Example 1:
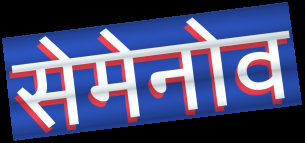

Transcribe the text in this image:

सेमेनोव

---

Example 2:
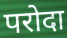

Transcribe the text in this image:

परोदा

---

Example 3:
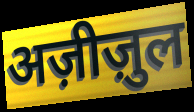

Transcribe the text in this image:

अज़ीज़ुल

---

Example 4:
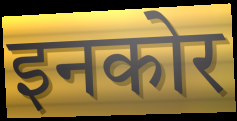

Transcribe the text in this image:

इनकोर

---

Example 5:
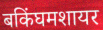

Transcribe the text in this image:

बकिंघमशायर